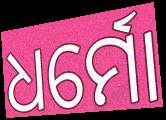
ଧର୍ମୋ